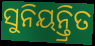
ସୁନିୟନ୍ତ୍ରିତ